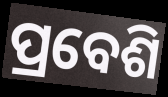
ପ୍ରବେଶି